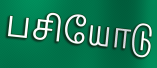
பசியோடு